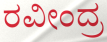
ರವೀಂದ್ರ